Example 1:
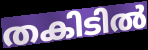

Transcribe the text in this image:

തകിടിൽ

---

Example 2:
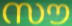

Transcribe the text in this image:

സൗ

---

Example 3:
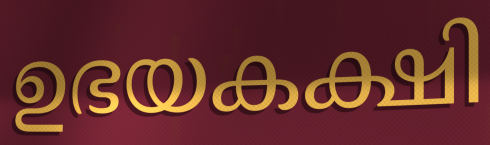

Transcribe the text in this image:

ഉഭയകക്ഷി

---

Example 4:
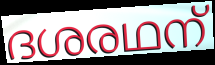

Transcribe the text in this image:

ദശരഥന്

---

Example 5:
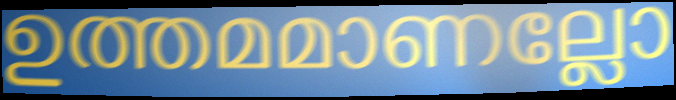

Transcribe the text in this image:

ഉത്തമമാണല്ലോ